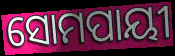
ସୋମପାୟୀ